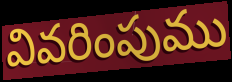
వివరింపుము